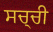
ਸਚ੍ਚੀ